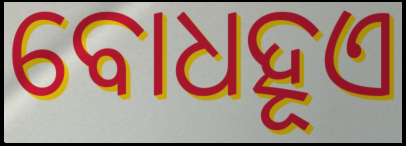
ବୋଧହୂଏ